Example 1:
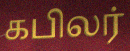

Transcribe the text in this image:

கபிலர்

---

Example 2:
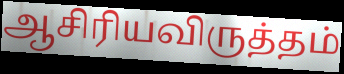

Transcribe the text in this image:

ஆசிரியவிருத்தம்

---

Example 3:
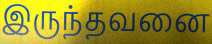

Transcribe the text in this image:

இருந்தவனை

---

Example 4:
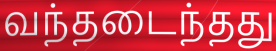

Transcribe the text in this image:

வந்தடைந்தது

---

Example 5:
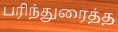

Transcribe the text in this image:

பரிந்துரைத்த